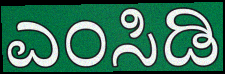
ಎಂಸಿಡಿ